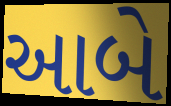
આબે